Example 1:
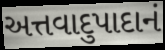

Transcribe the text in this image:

અત્તવાદુપાદાનં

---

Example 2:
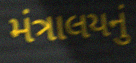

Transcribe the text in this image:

મંત્રાલયનું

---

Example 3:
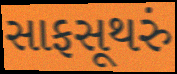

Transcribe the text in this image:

સાફસૂથરું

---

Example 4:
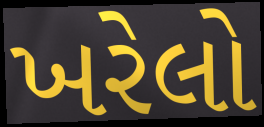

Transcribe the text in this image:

ખરેલો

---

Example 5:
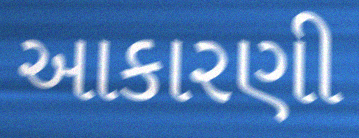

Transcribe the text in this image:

આકારણી